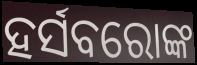
ହର୍ସବରୋଙ୍କ